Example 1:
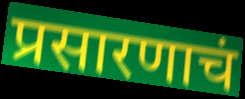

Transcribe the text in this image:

प्रसारणाचं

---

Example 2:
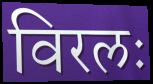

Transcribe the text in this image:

विरलः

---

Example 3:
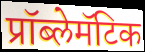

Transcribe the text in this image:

प्रॉब्लेमॅटिक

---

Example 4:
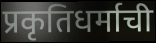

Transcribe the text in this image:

प्रकृतिधर्माची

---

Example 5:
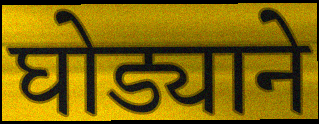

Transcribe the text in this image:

घोड्याने